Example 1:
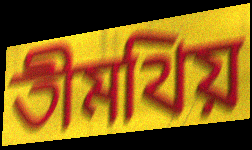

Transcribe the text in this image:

তীমথিয়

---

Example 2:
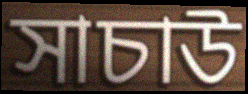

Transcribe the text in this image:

সাচাউ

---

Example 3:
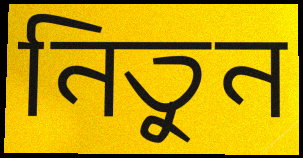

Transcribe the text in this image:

নিতুন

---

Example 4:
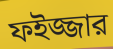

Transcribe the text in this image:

ফইজ্জার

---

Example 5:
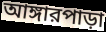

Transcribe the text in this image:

আঙ্গারপাড়া